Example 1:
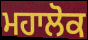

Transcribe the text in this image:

ਮਹਾਲੋਕ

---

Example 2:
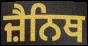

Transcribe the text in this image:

ਜ਼ੈਨਿਥ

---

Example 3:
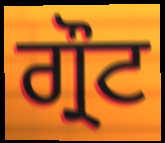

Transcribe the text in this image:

ਗ੍ਰੌਟ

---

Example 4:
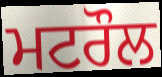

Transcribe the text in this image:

ਮਟਰੌਲ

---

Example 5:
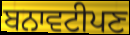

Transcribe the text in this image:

ਬਨਾਵਟੀਪਣ